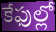
కేఫుల్లో